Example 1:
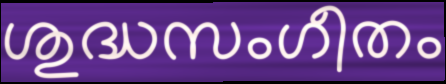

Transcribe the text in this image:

ശുദ്ധസംഗീതം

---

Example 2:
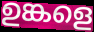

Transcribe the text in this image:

ഉങ്കളെ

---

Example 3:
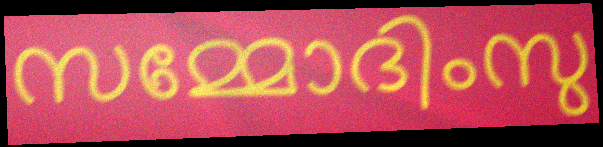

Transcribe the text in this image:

സമ്മോദിംസു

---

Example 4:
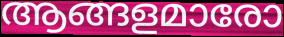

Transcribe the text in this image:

ആങ്ങളമാരോ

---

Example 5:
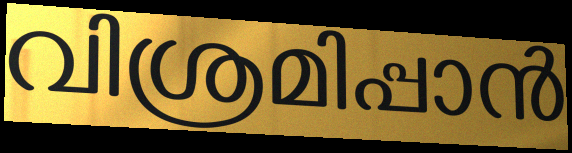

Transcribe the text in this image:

വിശ്രമിപ്പാൻ